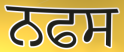
ਨਫਸ